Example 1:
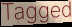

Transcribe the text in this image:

Tagged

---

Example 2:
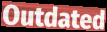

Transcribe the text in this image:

Outdated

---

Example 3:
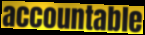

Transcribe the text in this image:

accountable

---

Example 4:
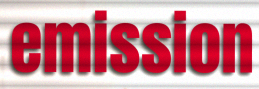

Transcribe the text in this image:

emission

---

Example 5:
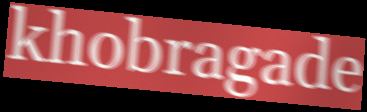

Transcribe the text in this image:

khobragade